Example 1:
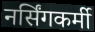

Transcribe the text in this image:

नर्सिंगकर्मी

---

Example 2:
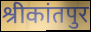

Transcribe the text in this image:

श्रीकांतपुर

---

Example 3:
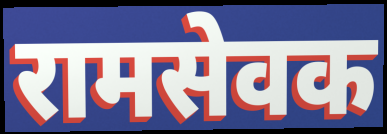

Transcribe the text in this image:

रामसेवक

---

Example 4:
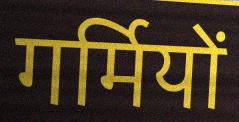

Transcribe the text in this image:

गर्मियों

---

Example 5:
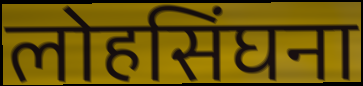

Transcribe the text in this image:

लोहसिंघना